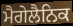
ਮੈਗੇਲੈਨਿਕ